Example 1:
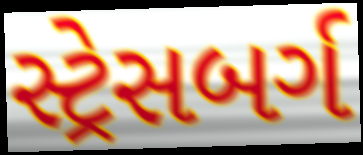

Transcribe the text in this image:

સ્ટ્રેસબર્ગ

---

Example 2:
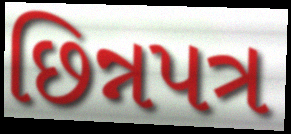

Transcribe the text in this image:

છિન્નપત્ર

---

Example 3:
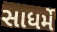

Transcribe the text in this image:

સાધર્મે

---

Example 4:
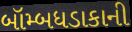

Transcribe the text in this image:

બૉમ્બધડાકાની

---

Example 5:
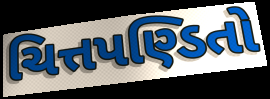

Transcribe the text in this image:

ચિત્તપણ્ડિતો